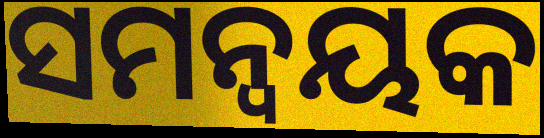
ସମନ୍ୱୟକ